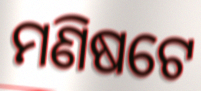
ମଣିଷଟେ